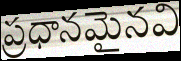
ప్రధానమైనవి